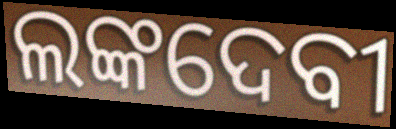
ଲଙ୍କଦେବୀ